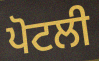
ਪੋਟਲੀ